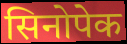
सिनोपेक